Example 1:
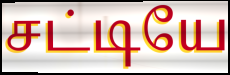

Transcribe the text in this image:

சட்டியே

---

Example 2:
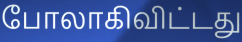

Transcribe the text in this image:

போலாகிவிட்டது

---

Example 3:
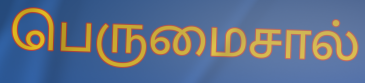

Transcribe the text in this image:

பெருமைசால்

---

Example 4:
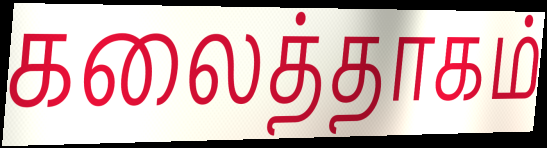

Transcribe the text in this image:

கலைத்தாகம்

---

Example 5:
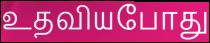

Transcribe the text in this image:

உதவியபோது